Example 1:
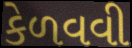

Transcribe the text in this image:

કેળવવી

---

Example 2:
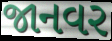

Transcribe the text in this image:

જાનવર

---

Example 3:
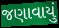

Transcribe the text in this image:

જણાવાયું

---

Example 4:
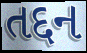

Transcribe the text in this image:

તદ્દન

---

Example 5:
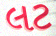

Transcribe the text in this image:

લટ